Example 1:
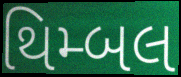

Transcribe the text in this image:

થિમ્બલ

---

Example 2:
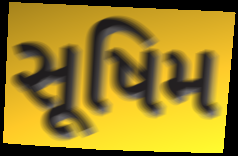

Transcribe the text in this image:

સૂષિમ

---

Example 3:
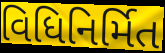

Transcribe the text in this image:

વિધિનિર્મિત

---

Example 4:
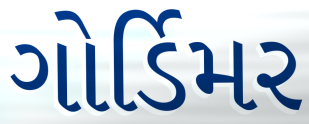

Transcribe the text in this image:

ગોર્ડિમર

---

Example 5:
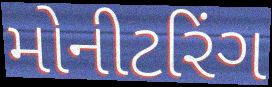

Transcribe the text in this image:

મોનીટરિંગ